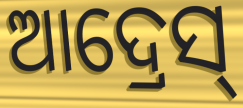
ଆଦ୍ରେସ୍